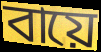
বায়ে